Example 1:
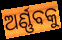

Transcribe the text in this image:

ଅର୍ଣ୍ଣବକୁ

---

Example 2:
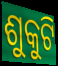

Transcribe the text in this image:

ଶୁକୁଟି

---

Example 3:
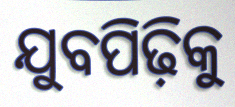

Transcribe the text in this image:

ଯୁବପିଢ଼ିକୁ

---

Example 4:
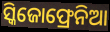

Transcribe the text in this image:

ସ୍କିଜୋଫ୍ରେନିଆ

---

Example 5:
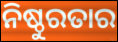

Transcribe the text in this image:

ନିଷ୍ଠୁରତାର